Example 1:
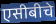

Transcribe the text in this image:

एसीबीचे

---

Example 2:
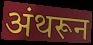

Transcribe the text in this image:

अंथरून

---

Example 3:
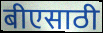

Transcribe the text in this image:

बीएसाठी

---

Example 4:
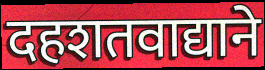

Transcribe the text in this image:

दहशतवाद्याने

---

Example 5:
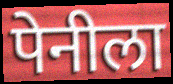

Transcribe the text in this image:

पेनीला